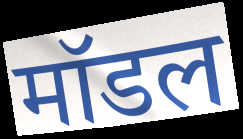
मॉडल